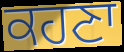
ਕਹਣਾ